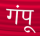
गंपू